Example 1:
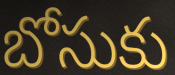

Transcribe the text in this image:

బోసుకు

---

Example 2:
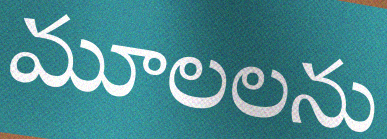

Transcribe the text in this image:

మూలలను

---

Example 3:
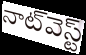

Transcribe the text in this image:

నాట్‌వెస్ట్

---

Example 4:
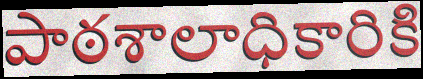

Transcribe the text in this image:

పాఠశాలాధికారికి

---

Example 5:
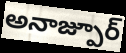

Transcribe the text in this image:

అనాజ్పూర్